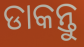
ଡାକନ୍ତୁ